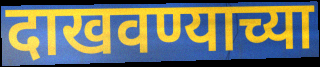
दाखवण्याच्या